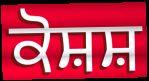
ਕੋਸ਼ਸ਼